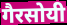
गैरसोयी